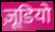
ज़ूडियो